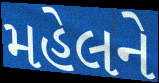
મહેલને